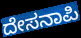
ದೇಸನಾಪಿ